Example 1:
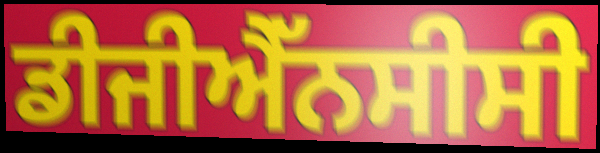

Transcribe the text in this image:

ਡੀਜੀਐੱਨਸੀਸੀ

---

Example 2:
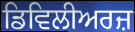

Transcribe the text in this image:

ਡਿਵਿਲੀਅਰਜ਼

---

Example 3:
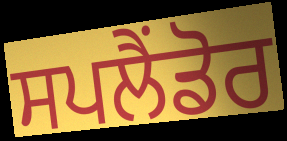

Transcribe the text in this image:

ਸਪਲੈਂਡੋਰ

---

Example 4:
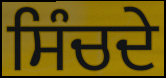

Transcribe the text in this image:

ਸਿੰਚਦੇ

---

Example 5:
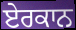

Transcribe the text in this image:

ਏਰਕਾਨ